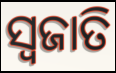
ସ୍ବଜାତି